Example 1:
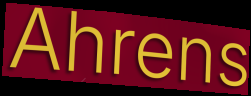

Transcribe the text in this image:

Ahrens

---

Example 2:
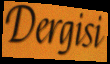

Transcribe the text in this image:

Dergisi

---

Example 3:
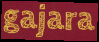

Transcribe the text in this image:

gajara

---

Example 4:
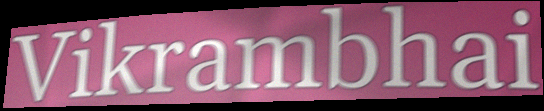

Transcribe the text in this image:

Vikrambhai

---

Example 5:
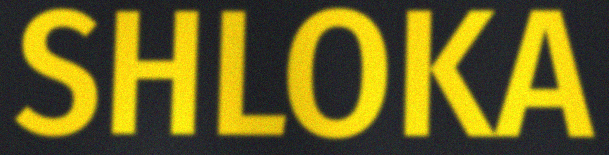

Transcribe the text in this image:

SHLOKA